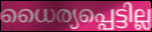
ധൈര്യപ്പെട്ടില്ല